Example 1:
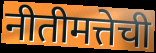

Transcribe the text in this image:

नीतीमत्तेची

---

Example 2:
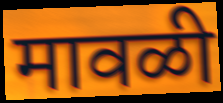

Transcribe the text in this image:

मावळी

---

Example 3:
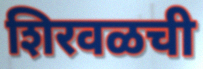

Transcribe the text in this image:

शिरवळची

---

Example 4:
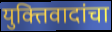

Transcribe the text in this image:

युक्तिवादांचा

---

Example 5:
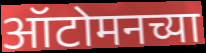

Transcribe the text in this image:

ऑटोमनच्या